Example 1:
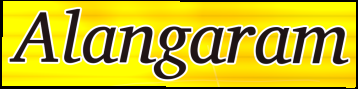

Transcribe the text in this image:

Alangaram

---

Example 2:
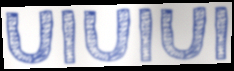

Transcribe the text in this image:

UIUIUI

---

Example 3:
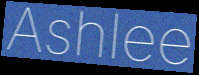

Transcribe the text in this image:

Ashlee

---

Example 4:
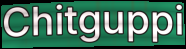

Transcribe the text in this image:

Chitguppi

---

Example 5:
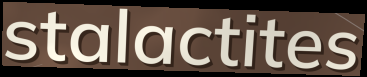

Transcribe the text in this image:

stalactites